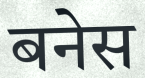
बनेस